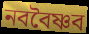
নববৈষ্ণব